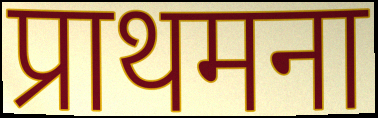
प्राथमना